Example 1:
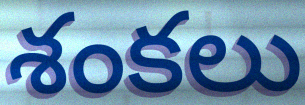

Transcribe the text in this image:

శంకలు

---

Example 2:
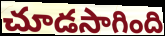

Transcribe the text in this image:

చూడసాగింది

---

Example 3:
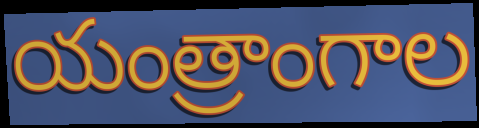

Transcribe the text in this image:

యంత్రాంగాల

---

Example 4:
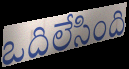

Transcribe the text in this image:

ఒదిలేసింది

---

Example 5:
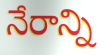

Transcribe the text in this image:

నేరాన్ని